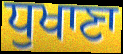
ਧੁਖਾਣਾ